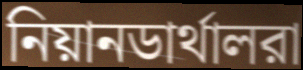
নিয়ানডার্থালরা